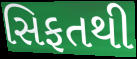
સિફતથી